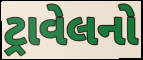
ટ્રાવેલનો